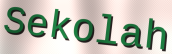
Sekolah